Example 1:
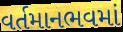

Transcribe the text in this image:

વર્તમાનભવમાં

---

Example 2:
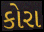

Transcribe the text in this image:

કોરા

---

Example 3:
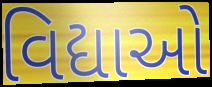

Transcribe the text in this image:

વિદ્યાઓ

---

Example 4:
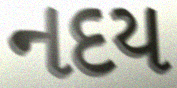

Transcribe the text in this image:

નદય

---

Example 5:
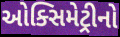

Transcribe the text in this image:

ઓક્સિમેટ્રીનો